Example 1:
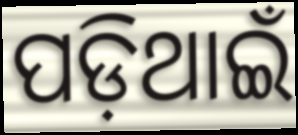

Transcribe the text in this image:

ପଡ଼ିଥାଇଁ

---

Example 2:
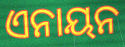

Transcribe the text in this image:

ଏନାୟନ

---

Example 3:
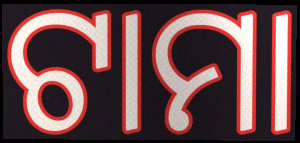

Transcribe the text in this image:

ଟାମା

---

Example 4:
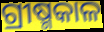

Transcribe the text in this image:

ଗ୍ରୀଷ୍ମକାଳ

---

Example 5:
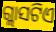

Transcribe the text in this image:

ଗ୍ଲାସଟିଏ